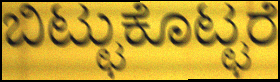
ಬಿಟ್ಟುಕೊಟ್ಟರೆ